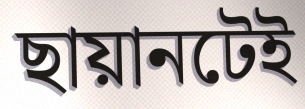
ছায়ানটেই